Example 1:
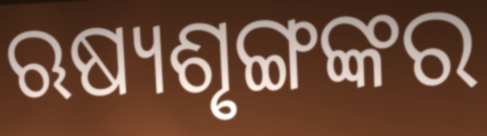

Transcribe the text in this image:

ଋଷ୍ୟଶୃଙ୍ଗଙ୍କର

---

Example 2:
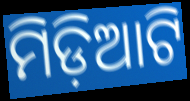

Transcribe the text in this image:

ମିଡ଼ିଆଟି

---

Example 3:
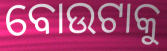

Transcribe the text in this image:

ବୋଉଟାକୁ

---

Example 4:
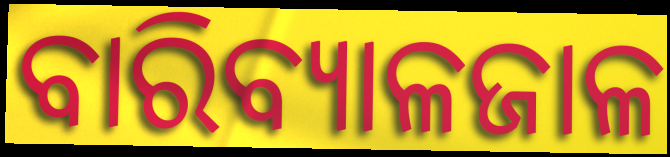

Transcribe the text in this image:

ବାରିବ୍ୟାଳଜାଳ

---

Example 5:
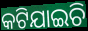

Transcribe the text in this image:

କଟିଯାଇଚି